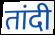
तांदी